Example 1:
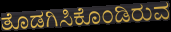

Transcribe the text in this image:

ತೊಡಗಿಸಿಕೊಂಡಿರುವ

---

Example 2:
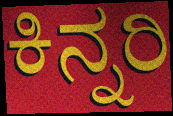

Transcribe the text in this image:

ಕಿನ್ನರಿ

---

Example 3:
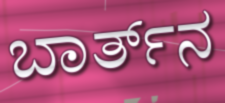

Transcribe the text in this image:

ಬಾರ್ತ್‌ನ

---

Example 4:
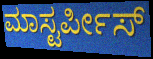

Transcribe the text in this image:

ಮಾಸ್ಟರ್ಪೀಸ್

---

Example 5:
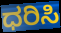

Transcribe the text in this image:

ಧರಿಸಿ